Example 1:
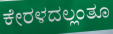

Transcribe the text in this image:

ಕೇರಳದಲ್ಲಂತೂ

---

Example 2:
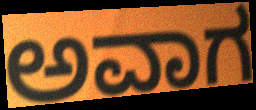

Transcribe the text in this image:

ಅವಾಗ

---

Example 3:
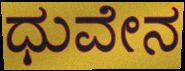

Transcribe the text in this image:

ಧುವೇನ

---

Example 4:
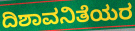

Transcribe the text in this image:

ದಿಶಾವನಿತೆಯರ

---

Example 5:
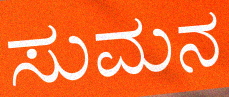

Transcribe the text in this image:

ಸುಮನ